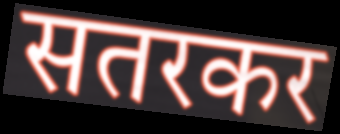
सतरकर